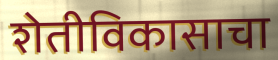
शेतीविकासाचा